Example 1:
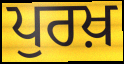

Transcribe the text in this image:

ਪੁਰਖ਼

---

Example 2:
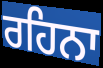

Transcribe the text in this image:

ਰਹਿਨਾ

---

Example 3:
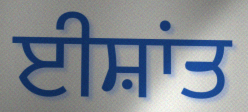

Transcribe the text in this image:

ਈਸ਼ਾਂਤ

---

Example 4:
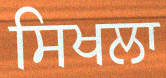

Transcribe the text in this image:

ਸਿਖਲਾ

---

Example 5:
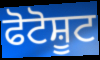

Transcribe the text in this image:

ਫੋਟੋਸ਼ੂਟ